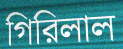
গিরিলাল